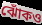
ঝোঁকও